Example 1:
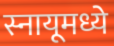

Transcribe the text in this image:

स्नायूमध्ये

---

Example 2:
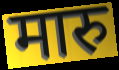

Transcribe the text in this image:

मारु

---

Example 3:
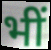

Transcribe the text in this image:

भीं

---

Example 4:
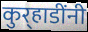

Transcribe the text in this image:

कुर्‍हाडींनी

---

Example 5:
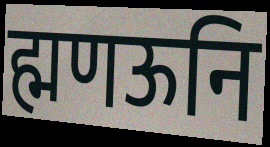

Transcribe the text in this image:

ह्मणऊनि